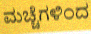
ಮಚ್ಚೆಗಳಿಂದ